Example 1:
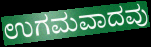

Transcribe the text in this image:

ಉಗಮವಾದವು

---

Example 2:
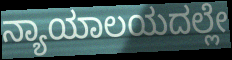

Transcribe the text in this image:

ನ್ಯಾಯಾಲಯದಲ್ಲೇ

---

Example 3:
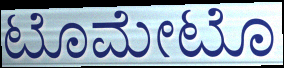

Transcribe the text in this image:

ಟೊಮೇಟೊ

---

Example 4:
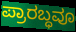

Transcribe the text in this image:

ಪ್ರಾರಬ್ಧವೂ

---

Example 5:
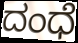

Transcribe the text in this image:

ದಂಧೆ